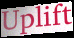
Uplift